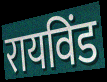
रायविंड